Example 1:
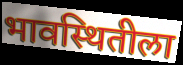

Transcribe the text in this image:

भावस्थितीला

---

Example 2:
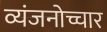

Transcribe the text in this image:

व्यंजनोच्चार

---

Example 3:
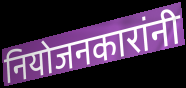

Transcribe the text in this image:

नियोजनकारांनी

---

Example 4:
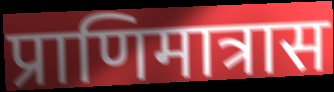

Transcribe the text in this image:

प्राणिमात्रास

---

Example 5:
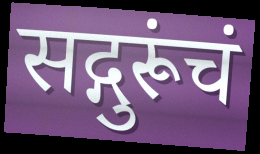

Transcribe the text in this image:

सद्गुरूंचं